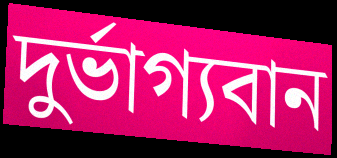
দুর্ভাগ্যবান